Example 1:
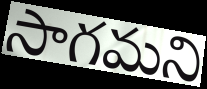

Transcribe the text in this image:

సాగమని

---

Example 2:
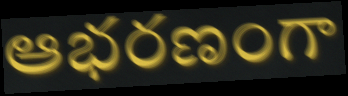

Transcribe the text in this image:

ఆభరణంగా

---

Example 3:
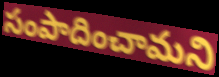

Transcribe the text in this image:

సంపాదించామని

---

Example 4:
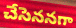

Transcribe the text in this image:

చేసెననగా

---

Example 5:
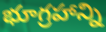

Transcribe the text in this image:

భూగ్రహాన్ని